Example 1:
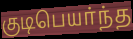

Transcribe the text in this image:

குடிபெயர்ந்த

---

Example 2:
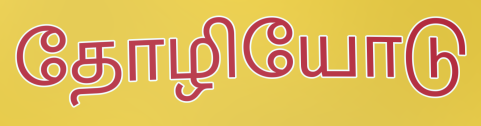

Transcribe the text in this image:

தோழியோடு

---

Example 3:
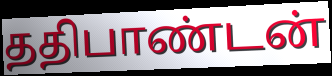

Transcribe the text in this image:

ததிபாண்டன்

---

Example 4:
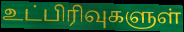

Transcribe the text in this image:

உட்பிரிவுகளுள்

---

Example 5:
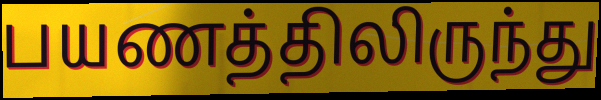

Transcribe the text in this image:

பயணத்திலிருந்து